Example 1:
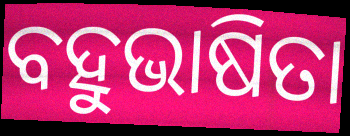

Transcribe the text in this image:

ବହୁଭାଷିତା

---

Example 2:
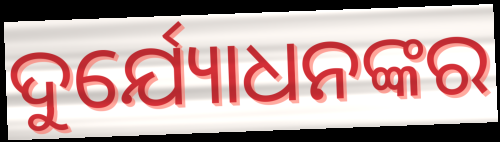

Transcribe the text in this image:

ଦୁର୍ଯ୍ୟୋଧନଙ୍କର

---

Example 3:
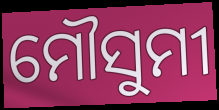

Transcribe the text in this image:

ମୌସୁମୀ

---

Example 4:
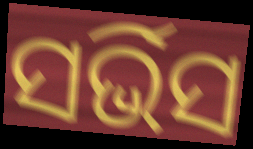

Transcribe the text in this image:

ସର୍ଭିସ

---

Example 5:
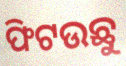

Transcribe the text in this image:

ଫିଟଉଛୁ